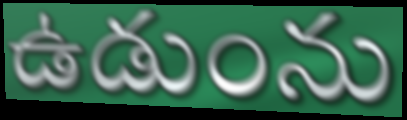
ఉడుంను